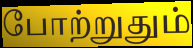
போற்றுதும்